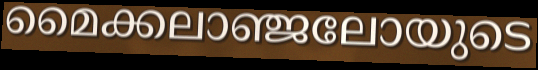
മൈക്കലാഞ്ജലോയുടെ